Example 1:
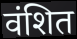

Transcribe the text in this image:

वंशित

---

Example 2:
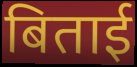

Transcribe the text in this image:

बिताई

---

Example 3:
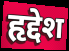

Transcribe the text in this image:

हृद्देश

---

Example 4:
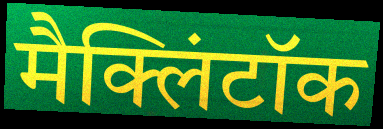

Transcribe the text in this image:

मैक्लिंटॉक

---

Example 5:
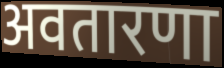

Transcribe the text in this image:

अवतारणा